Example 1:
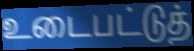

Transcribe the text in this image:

உடைபட்டுத்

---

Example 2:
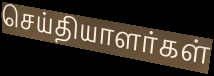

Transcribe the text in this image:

செய்தியாளர்கள்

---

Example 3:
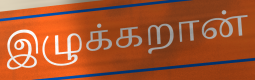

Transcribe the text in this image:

இழுக்கறான்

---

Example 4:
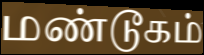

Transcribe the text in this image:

மண்டூகம்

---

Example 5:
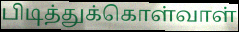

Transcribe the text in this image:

பிடித்துக்கொள்வாள்